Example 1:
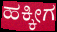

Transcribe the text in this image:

ಹಕ್ಕೀಗ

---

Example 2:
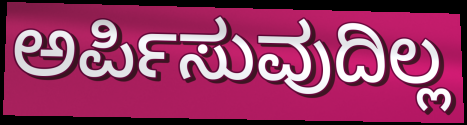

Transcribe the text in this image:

ಅರ್ಪಿಸುವುದಿಲ್ಲ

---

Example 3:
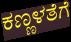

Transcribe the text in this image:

ಕಣ್ಣಳತೆಗೆ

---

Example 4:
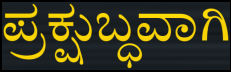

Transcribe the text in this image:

ಪ್ರಕ್ಷುಬ್ಧವಾಗಿ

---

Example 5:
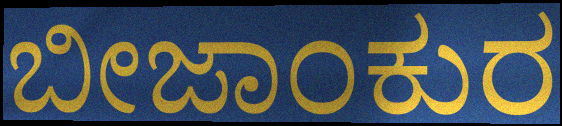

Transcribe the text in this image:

ಬೀಜಾಂಕುರ